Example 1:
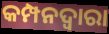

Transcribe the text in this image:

କମ୍ପନଦ୍ୱାରା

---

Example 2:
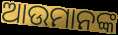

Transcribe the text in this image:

ଆଉମାନଙ୍କ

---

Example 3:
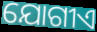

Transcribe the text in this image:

ଯୋଗୀଏ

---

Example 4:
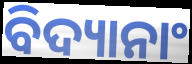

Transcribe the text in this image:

ବିଦ୍ୟାନାଂ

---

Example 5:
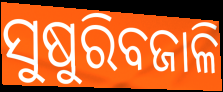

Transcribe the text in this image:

ସୁଷୁରିବଜାଳି